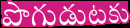
పొగుడుటకు